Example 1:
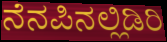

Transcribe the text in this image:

ನೆನಪಿನಲ್ಲಿಡಿರಿ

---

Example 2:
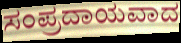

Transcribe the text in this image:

ಸಂಪ್ರದಾಯವಾದ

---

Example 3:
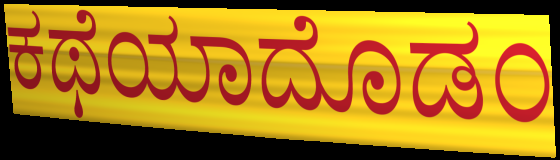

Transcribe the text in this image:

ಕಥೆಯಾದೊಡಂ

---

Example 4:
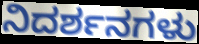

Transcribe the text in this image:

ನಿದರ್ಶನಗಳು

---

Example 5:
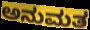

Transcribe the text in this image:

ಅನುಮತ